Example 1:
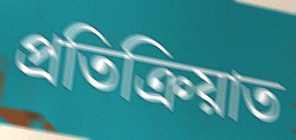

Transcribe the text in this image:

প্ৰতিক্ৰিয়াত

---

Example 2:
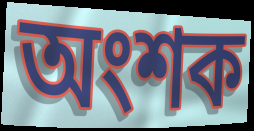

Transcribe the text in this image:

অংশক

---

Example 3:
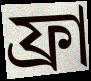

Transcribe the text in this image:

ফ্ৰা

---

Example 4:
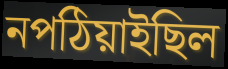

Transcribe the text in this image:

নপঠিয়াইছিল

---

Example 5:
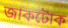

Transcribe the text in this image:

জাকটোক